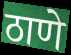
ठाणे